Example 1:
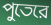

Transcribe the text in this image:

পুতেরে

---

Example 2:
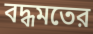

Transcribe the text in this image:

বদ্ধমতের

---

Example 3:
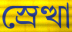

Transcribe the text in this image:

স্রেত্থা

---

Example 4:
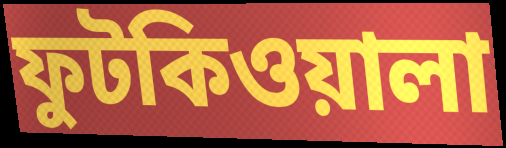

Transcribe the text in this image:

ফুটকিওয়ালা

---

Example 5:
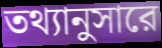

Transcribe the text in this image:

তথ্যানুসারে